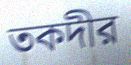
তকদীর